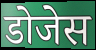
डोजेस